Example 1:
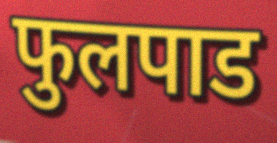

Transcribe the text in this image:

फुलपाड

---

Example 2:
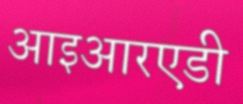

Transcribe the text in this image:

आइआरएडी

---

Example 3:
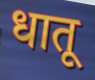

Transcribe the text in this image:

धातू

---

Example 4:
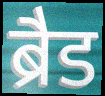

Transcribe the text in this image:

ब्रैड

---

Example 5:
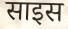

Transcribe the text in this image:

साइस